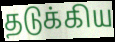
தடுக்கிய